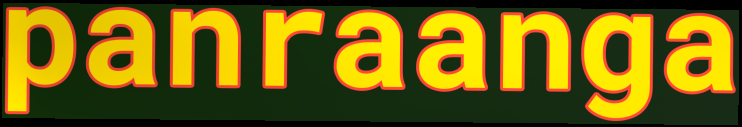
panraanga